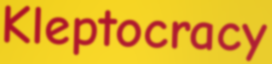
Kleptocracy